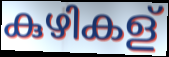
കുഴികള്